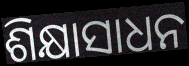
ଶିକ୍ଷାସାଧନ